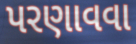
પરણાવવા